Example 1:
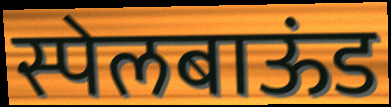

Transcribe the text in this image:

स्पेलबाऊंड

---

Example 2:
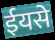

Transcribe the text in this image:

ईयसे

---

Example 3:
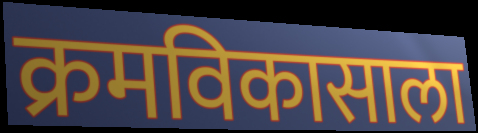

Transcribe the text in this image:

क्रमविकासाला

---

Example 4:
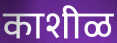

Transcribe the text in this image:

काशीळ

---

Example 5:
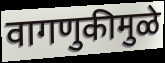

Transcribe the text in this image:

वागणुकीमुळे